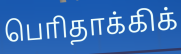
பெரிதாக்கிக்